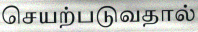
செயற்படுவதால்